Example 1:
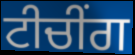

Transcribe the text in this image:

ਟੀਚੀਂਗ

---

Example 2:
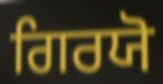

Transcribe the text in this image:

ਗਿਰਯੋ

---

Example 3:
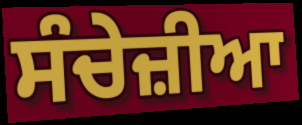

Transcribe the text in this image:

ਸੰਚੇਜ਼ੀਆ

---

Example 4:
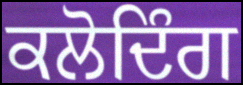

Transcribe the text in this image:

ਕਲੋਦਿੰਗ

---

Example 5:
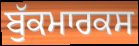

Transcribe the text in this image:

ਬੁੱਕਮਾਰਕਸ